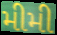
મીમી